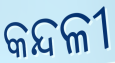
କନ୍ଦଳୀ